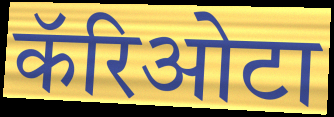
कॅरिओटा